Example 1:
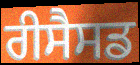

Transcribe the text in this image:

ਰੀਸੈਸਡ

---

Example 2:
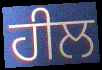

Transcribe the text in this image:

ਹੀਲ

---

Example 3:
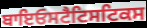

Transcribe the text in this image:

ਬਾਇਓਸਟੈਟਿਸਟਿਕਸ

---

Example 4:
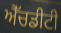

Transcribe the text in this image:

ਐੱਚਡੀਟੀ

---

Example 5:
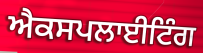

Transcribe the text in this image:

ਐਕਸਪਲਾਈਟਿੰਗ